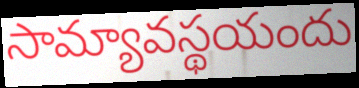
సామ్యావస్థయందు